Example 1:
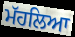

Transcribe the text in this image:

ਮੱਹਲਿਆ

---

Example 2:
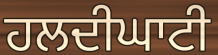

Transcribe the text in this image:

ਹਲਦੀਘਾਟੀ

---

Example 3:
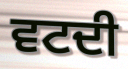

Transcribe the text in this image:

ਵਟਦੀ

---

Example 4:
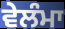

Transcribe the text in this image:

ਵੇਲੰਮਾ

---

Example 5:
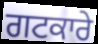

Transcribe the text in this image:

ਗਟਕਾਰੇ